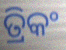
ତ୍ରିକଂ